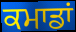
ਕਮਾਡਾਂ